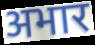
अभार